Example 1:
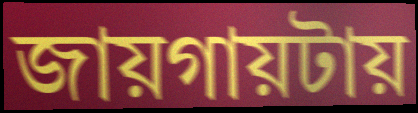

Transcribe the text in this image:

জায়গায়টায়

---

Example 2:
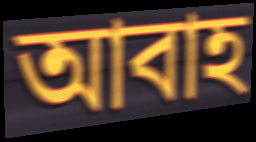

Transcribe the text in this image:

আবাহ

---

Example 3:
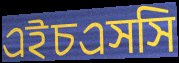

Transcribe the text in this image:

এইচএসসি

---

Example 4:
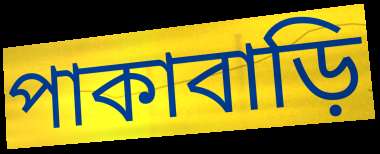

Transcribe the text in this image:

পাকাবাড়ি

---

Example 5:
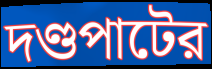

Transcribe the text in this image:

দণ্ডপাটের